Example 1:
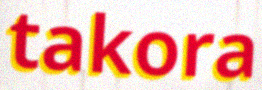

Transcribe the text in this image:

takora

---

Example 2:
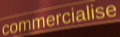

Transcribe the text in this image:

commercialise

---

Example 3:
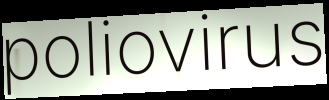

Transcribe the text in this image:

poliovirus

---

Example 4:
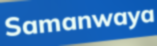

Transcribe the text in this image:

Samanwaya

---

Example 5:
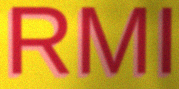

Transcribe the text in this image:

RMI